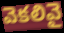
వెకలివై